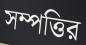
সম্পত্তির